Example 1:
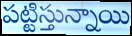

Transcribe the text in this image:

పట్టిస్తున్నాయి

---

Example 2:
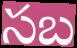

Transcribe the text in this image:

సబ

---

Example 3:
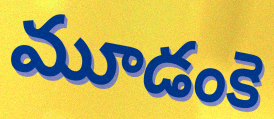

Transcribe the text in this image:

మూడంకె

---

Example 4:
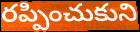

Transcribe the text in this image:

రప్పించుకుని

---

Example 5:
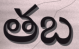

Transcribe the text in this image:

తబ